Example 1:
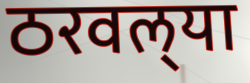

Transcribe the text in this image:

ठरवल्या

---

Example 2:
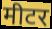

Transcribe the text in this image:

मीटर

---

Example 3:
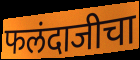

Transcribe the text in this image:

फलंदाजीचा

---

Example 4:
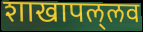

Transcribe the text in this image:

शाखापल्लव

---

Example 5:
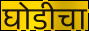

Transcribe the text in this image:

घोडीचा